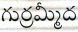
గుర్రమ్మీద